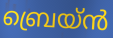
ബ്രെയ്ൻ